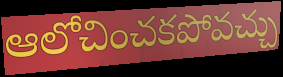
ఆలోచించకపోవచ్చు